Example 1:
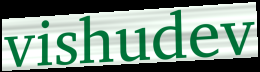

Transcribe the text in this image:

vishudev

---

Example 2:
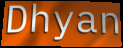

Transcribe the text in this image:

Dhyan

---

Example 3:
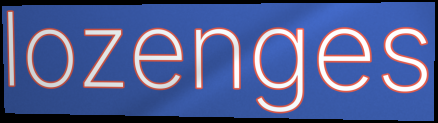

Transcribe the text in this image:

lozenges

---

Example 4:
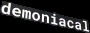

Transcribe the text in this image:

demoniacal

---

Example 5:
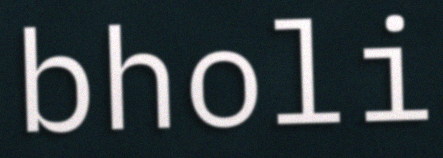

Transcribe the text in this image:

bholi